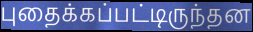
புதைக்கப்பட்டிருந்தன